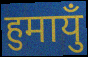
हुमायुँ